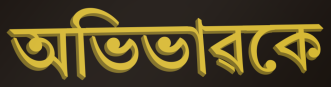
অভিভাৱকে